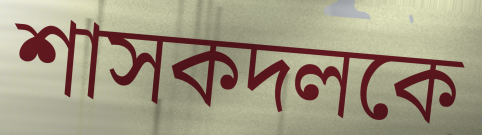
শাসকদলকে